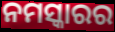
ନମସ୍କାରର